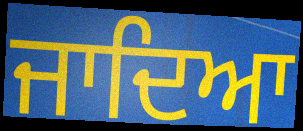
ਜਾਦਿਆ